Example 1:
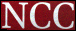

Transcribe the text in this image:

NCC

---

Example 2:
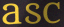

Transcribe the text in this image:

asc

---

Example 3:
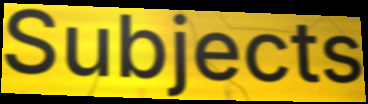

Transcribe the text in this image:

Subjects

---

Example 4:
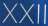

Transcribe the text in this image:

XXII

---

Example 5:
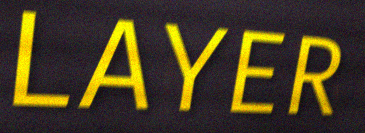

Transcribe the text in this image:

LAYER